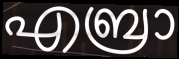
എബ്രാ